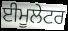
ਈਮੂਲੇਟਰ